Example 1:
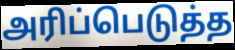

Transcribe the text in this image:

அரிப்பெடுத்த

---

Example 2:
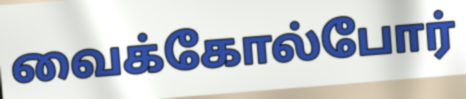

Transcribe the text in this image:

வைக்கோல்போர்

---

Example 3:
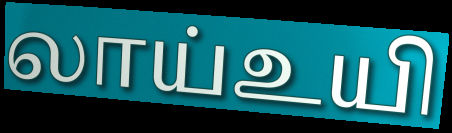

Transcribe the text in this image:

லாய்உயி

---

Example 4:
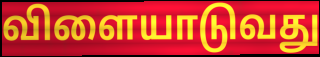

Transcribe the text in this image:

விளையாடுவது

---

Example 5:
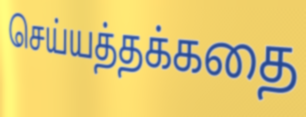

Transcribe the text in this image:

செய்யத்தக்கதை